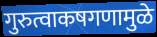
गुरुत्वाकषगणामुळे